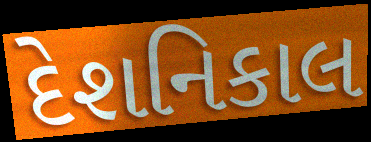
દેશનિકાલ